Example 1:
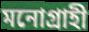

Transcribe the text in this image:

মনোগ্রাহী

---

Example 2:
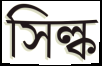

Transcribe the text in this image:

সিল্ক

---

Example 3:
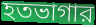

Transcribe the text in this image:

হতভাগার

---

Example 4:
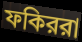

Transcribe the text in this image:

ফকিররা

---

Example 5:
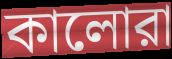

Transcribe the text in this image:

কালোরা